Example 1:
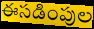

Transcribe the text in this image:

ఈసడింపుల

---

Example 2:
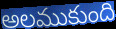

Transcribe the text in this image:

అలముకుంది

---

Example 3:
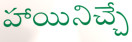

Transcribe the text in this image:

హాయినిచ్చే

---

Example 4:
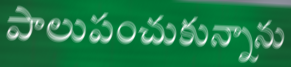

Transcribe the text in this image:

పాలుపంచుకున్నాను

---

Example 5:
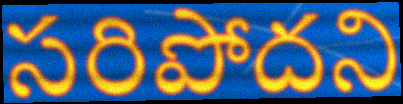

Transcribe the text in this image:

సరిపోదని